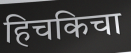
हिचकिचा